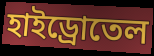
হাইড্রোতেল